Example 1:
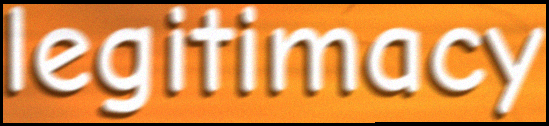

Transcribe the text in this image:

legitimacy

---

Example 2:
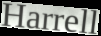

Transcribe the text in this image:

Harrell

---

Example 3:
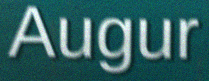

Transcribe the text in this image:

Augur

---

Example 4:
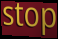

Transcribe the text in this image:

stop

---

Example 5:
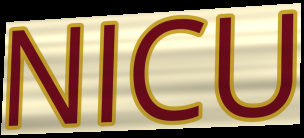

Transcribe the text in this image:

NICU